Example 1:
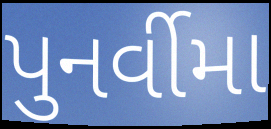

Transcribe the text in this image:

પુનર્વીમા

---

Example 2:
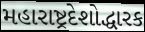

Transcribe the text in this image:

મહારાષ્ટ્રદેશોદ્ધારક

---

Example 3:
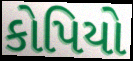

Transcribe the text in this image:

કોપિયો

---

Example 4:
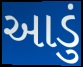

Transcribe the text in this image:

આડું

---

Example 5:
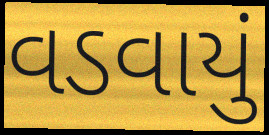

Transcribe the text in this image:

વડવાયું